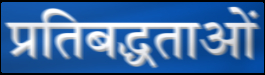
प्रतिबद्धताओं